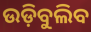
ଉଡ଼ିବୁଲିବ